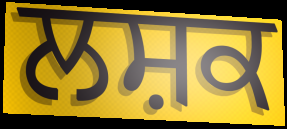
ਲਸ਼ਕ